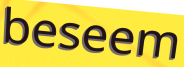
beseem